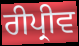
ਰੀਪ੍ਰੀਵ